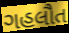
ગહલૌત